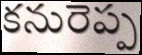
కనురెప్ప